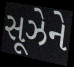
સૂઝેને